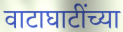
वाटाघाटींच्या